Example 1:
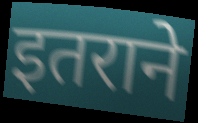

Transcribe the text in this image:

इतराने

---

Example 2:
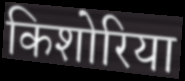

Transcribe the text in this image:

किशोरिया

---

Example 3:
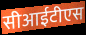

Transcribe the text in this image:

सीआईटीएस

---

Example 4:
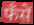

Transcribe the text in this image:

फँसें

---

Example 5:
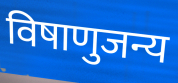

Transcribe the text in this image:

विषाणुजन्य